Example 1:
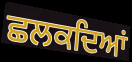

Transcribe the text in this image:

ਛਲਕਦਿਆਂ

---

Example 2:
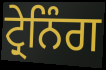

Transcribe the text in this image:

ਟ੍ਰੇਨਿੰਗ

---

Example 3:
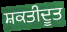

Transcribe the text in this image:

ਸ਼ਕਤੀਦੂਤ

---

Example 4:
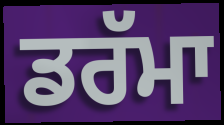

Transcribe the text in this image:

ਡਰੱਮਾ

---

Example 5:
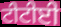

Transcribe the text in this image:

ਟੀਟੀਈ